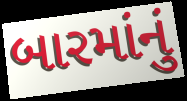
બારમાંનું